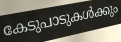
കേടുപാടുകൾക്കും